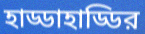
হাড্ডাহাড্ডির